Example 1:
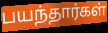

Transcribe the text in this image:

பயந்தார்கள்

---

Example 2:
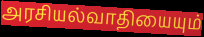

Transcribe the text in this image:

அரசியல்வாதியையும்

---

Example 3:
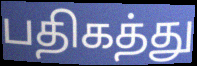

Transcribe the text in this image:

பதிகத்து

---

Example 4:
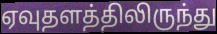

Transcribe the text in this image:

ஏவுதளத்திலிருந்து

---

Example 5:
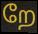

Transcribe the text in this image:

றே